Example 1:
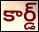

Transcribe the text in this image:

కార్డ్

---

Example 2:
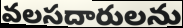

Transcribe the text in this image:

వలసదారులను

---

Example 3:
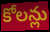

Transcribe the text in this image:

కోలన్లు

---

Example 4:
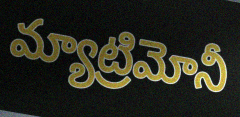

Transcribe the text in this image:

మ్యాట్రిమోనీ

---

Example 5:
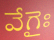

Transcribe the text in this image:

వేగైః